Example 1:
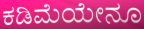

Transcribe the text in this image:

ಕಡಿಮೆಯೇನೂ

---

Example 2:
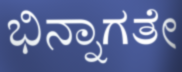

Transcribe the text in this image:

ಭಿನ್ನಾಗತೇ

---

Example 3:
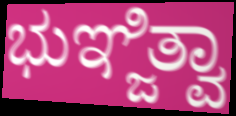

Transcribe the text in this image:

ಭುಞ್ಜಿತ್ವಾ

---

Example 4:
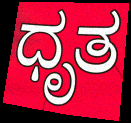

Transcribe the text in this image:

ಧೃತ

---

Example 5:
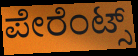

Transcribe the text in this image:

ಪೇರೆಂಟ್ಸ್